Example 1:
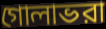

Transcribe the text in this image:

গোলাভরা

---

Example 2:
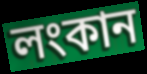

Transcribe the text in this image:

লংকান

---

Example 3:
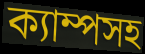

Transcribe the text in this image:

ক্যাম্পসহ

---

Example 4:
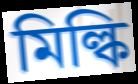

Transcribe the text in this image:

মিল্কি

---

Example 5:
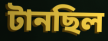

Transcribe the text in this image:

টানছিল